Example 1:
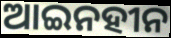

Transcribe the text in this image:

ଆଇନହୀନ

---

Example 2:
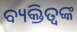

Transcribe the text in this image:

ବ୍ୟକ୍ତିତ୍ବଙ୍କ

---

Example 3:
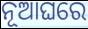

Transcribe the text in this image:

ନୂଆଘରେ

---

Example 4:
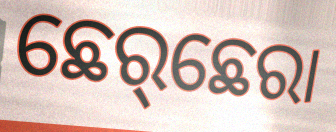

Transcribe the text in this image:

ଛେର୍‌ଛେରା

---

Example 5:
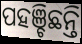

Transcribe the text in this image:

ପହଞ୍ଚିଛନ୍ତି